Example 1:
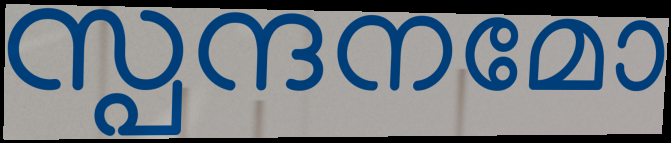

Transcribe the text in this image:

സ്പന്ദനമോ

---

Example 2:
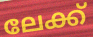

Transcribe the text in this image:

ലേക്ക്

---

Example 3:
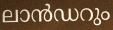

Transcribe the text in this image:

ലാൻഡറും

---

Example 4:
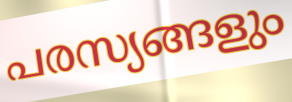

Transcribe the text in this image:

പരസ്യങ്ങളും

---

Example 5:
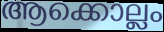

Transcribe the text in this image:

ആക്കൊല്ലം